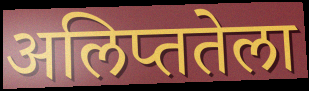
अलिप्ततेला